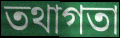
তথাগতা